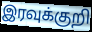
இரவுக்குறி